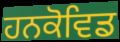
ਹਨਕੋਵਿਡ